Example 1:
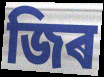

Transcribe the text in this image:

জিৰ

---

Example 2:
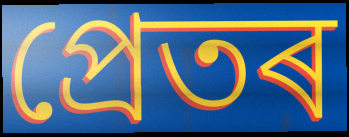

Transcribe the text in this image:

প্ৰেতৰ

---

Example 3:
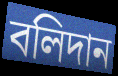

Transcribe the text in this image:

বলিদান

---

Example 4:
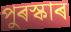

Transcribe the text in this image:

পুৰস্কাৰ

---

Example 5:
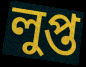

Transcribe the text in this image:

লুপ্ত